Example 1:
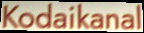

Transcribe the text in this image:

Kodaikanal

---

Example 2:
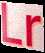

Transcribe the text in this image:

Lr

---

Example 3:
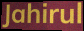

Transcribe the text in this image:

Jahirul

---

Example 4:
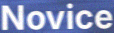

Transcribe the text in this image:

Novice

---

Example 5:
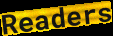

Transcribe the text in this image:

Readers